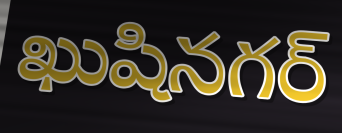
ఖుషినగర్